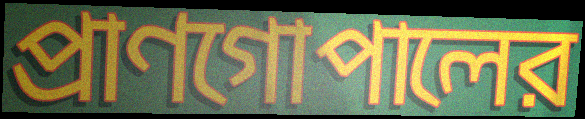
প্রাণগোপালের